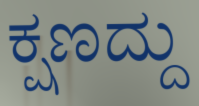
ಕ್ಷಣದ್ದು